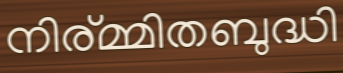
നിര്മ്മിതബുദ്ധി